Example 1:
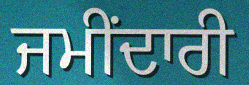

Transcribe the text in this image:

ਜਮੀਂਦਾਰੀ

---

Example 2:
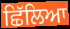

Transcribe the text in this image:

ਛਿੱਲਿਆ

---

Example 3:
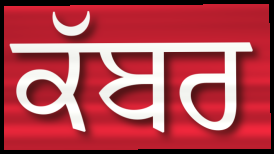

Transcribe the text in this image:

ਕੱਬਰ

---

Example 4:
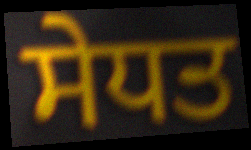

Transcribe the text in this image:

ਸੇਧਤ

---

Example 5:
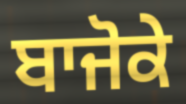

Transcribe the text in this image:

ਬਾਜੋਕੇ